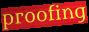
proofing